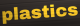
plastics